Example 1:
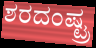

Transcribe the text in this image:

ಶರದಂಷ್ಟ್ರ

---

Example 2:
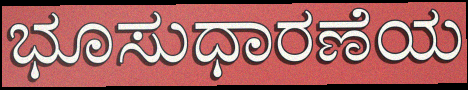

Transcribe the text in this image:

ಭೂಸುಧಾರಣೆಯ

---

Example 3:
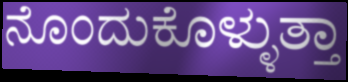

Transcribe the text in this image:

ನೊಂದುಕೊಳ್ಳುತ್ತಾ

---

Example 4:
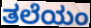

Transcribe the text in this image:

ತಲೆಯಂ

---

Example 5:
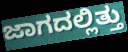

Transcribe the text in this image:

ಜಾಗದಲ್ಲಿತ್ತು